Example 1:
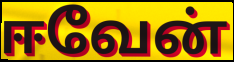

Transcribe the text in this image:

ஈவேன்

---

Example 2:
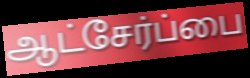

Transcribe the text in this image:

ஆட்சேர்ப்பை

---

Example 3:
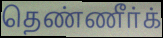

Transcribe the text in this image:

தெண்ணீர்க்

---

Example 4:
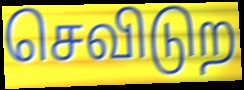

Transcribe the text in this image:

செவிடுற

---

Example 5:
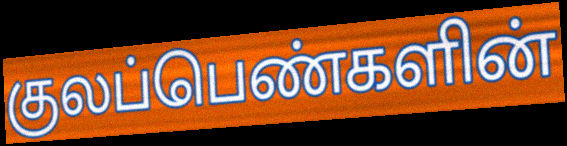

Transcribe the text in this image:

குலப்பெண்களின்